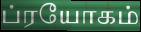
ப்ரயோகம்